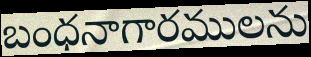
బంధనాగారములను